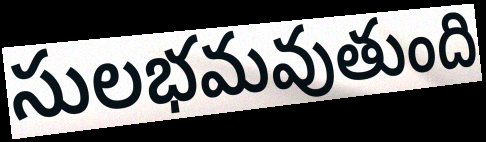
సులభమవుతుంది